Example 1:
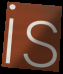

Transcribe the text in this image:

is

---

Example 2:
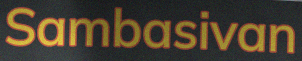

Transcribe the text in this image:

Sambasivan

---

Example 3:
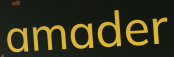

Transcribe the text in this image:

amader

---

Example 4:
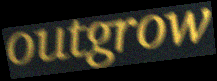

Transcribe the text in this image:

outgrow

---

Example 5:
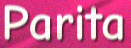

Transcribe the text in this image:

Parita